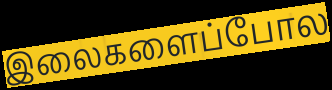
இலைகளைப்போல